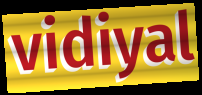
vidiyal